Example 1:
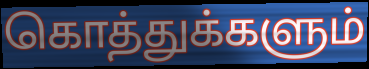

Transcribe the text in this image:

கொத்துக்களும்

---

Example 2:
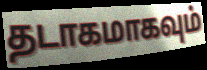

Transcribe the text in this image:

தடாகமாகவும்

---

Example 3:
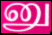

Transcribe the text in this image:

னு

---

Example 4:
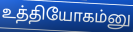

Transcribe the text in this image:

உத்தியோகம்னு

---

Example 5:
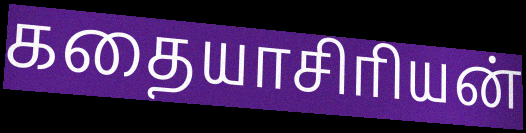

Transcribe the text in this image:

கதையாசிரியன்